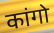
कांगो